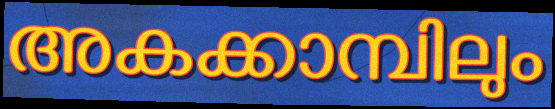
അകക്കാമ്പിലും